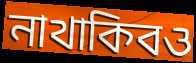
নাথাকিবও